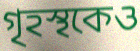
গৃহস্থকেও